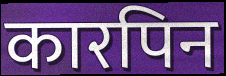
कारपिन